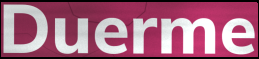
Duerme